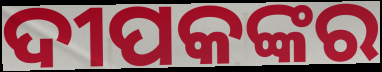
ଦୀପକଙ୍କର